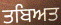
ਤਬਿਅਤ